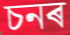
চনৰ